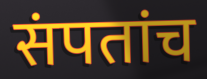
संपतांच